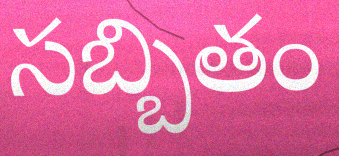
సబ్బితం